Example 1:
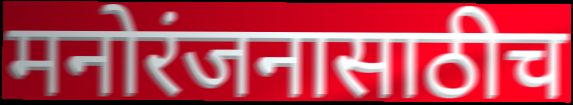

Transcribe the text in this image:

मनोरंजनासाठीच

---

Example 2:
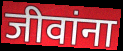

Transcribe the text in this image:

जीवांना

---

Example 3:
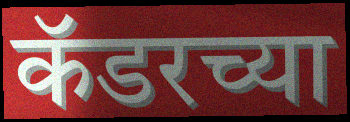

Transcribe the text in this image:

कॅडरच्या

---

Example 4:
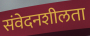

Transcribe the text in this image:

संवेदनशीलता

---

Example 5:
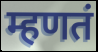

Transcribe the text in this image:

म्हणतं